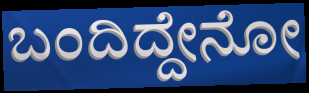
ಬಂದಿದ್ದೇನೋ